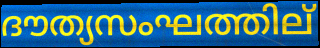
ദൗത്യസംഘത്തില്